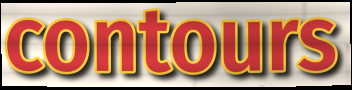
contours